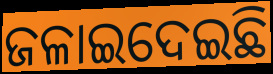
ଜଳାଇଦେଇଛି